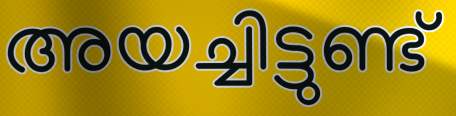
അയച്ചിട്ടുണ്ട്